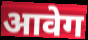
आवेग